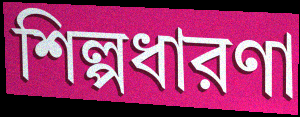
শিল্পধারণা